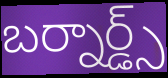
బర్నార్డ్స్